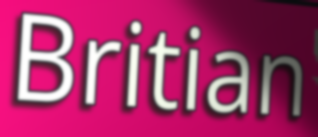
Britian